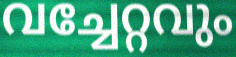
വച്ചേറ്റവും